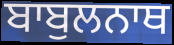
ਬਾਬੁਲਨਾਥ